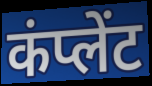
कंप्लेंट